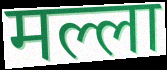
मल्‍ला